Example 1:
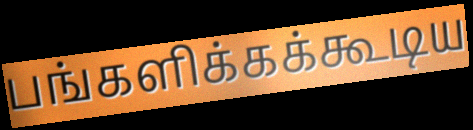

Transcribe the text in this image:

பங்களிக்கக்கூடிய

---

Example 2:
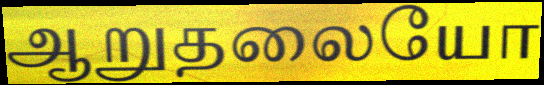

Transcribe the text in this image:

ஆறுதலையோ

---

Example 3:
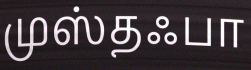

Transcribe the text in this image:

முஸ்தஃபா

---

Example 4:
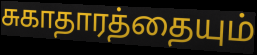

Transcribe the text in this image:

சுகாதாரத்தையும்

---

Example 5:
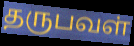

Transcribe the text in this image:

தருபவள்